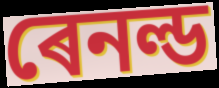
ৰেনল্ড